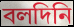
বলদিনি